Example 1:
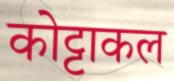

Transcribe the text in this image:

कोट्टाकल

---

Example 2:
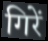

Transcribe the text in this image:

गिरें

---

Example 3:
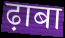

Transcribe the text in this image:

ढ़ाबा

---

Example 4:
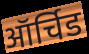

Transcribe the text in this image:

ऑर्चिड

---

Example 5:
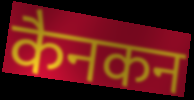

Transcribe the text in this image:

कैनकन